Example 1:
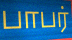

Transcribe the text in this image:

பாபர்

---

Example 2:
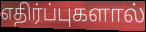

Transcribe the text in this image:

எதிர்ப்புகளால்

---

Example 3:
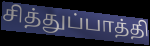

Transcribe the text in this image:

சித்துப்பாத்தி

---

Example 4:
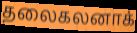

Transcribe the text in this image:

தலைகலனாக்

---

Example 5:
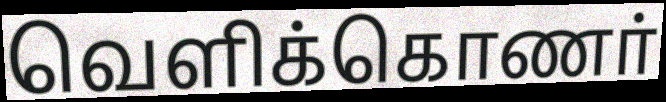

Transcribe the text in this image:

வெளிக்கொணர்